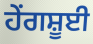
ਹੇਂਗਸ਼ੂਈ